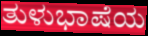
ತುಳುಭಾಷೆಯ